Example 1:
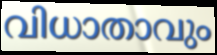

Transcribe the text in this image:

വിധാതാവും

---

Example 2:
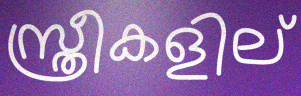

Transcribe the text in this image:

സ്ത്രീകളില്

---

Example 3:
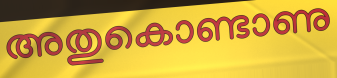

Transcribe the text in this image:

അതുകൊണ്ടാണു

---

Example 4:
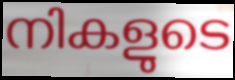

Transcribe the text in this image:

നികളുടെ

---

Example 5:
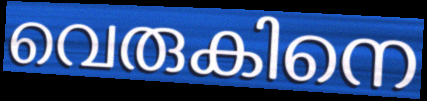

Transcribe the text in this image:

വെരുകിനെ